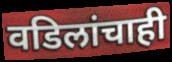
वडिलांचाही